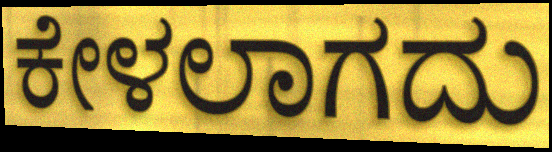
ಕೇಳಲಾಗದು